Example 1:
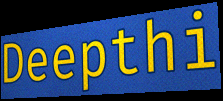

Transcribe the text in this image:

Deepthi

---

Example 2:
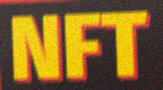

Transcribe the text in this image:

NFT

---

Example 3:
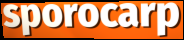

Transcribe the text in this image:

sporocarp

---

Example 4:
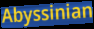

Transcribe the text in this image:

Abyssinian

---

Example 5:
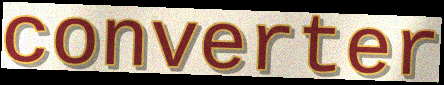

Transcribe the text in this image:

converter